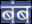
बंब